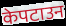
केपटाउन